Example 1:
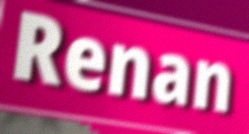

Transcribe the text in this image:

Renan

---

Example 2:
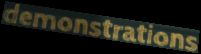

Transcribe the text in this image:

demonstrations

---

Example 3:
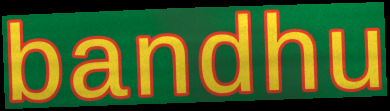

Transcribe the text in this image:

bandhu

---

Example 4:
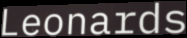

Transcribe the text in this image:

Leonards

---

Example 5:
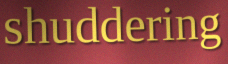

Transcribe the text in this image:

shuddering